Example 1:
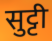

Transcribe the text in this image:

सुट्टी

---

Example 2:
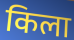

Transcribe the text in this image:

किला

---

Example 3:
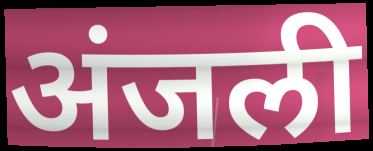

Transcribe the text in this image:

अंजली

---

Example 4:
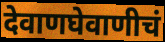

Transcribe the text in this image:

देवाणघेवाणीचं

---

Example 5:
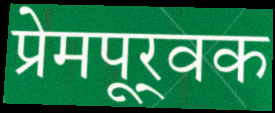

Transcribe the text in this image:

प्रेमपूर्वक